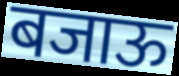
बजाऊ